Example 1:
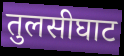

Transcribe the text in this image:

तुलसीघाट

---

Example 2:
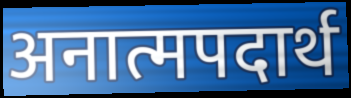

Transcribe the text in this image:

अनात्मपदार्थ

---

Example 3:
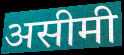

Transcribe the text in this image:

असीमी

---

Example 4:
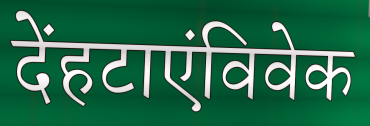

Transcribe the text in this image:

देंहटाएंविवेक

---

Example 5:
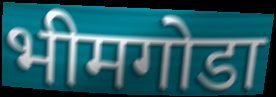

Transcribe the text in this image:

भीमगोडा